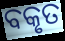
ବକୃତ